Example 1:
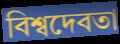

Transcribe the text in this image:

বিশ্বদেবতা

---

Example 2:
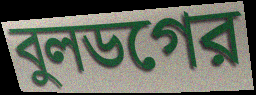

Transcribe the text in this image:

বুলডগের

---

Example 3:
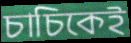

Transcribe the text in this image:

চাচিকেই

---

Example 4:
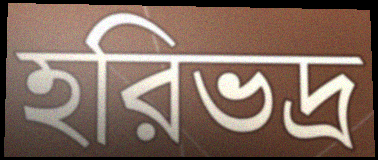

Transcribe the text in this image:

হরিভদ্র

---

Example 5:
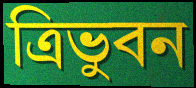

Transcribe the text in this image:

ত্রিভুবন